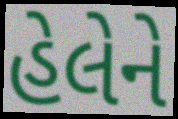
હેલેને